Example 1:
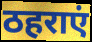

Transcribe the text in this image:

ठहराएं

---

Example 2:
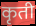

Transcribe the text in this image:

कृती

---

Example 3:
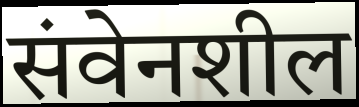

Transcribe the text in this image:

संवेनशील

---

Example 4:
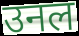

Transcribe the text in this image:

उनल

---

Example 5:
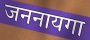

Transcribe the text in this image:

जननायगा